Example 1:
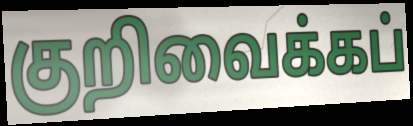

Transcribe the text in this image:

குறிவைக்கப்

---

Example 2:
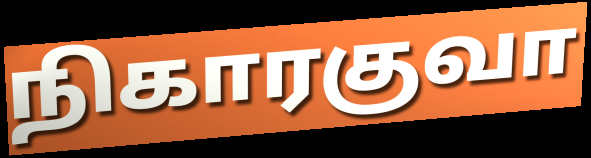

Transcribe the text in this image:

நிகாரகுவா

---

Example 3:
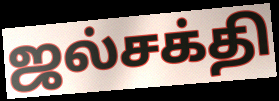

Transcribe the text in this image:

ஜல்சக்தி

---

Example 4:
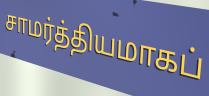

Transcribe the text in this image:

சாமர்த்தியமாகப்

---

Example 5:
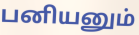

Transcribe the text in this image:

பனியனும்